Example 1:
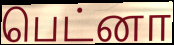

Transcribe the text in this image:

பெட்னா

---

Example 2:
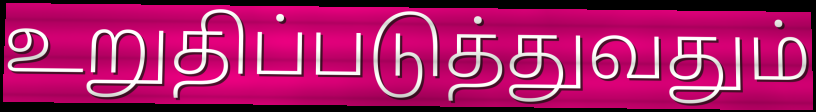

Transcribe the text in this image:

உறுதிப்படுத்துவதும்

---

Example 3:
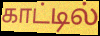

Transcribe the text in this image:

காட்டில்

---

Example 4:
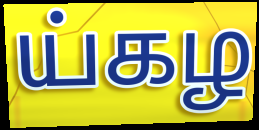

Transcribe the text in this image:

ய்கழ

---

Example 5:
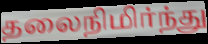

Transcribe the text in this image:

தலைநிமிர்ந்து